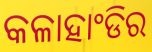
କଳାହାଂଡିର